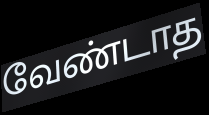
வேண்டாத